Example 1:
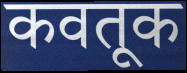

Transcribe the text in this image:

कवतूक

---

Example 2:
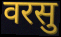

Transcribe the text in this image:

वरसु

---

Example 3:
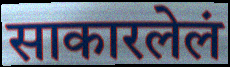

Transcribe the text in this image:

साकारलेलं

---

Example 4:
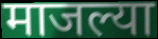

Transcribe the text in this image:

माजल्या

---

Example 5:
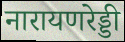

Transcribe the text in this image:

नारायणरेड्डी